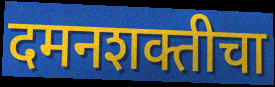
दमनशक्तीचा